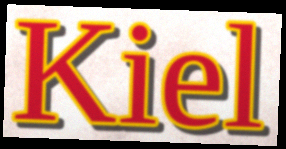
Kiel